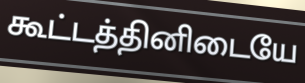
கூட்டத்தினிடையே